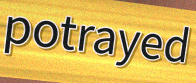
potrayed